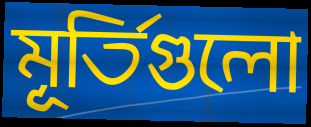
মূর্তিগুলো